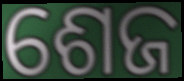
ଶେଜ